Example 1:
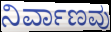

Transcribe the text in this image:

ನಿರ್ವಾಣವು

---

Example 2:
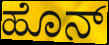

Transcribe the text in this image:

ಹೊನ್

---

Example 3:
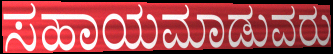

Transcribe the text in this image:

ಸಹಾಯಮಾಡುವರು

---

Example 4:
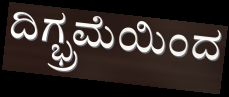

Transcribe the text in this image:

ದಿಗ್ಭ್ರಮೆಯಿಂದ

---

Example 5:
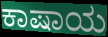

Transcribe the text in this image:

ಕಾಷಾಯ